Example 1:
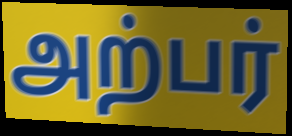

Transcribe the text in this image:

அற்பர்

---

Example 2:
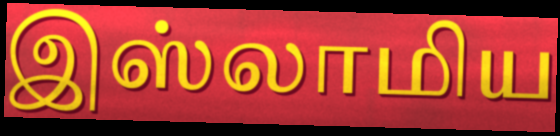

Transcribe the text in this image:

இஸ்லாமிய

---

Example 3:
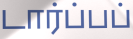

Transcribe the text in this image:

டார்ப்பப்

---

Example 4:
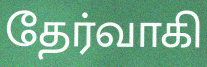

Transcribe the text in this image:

தேர்வாகி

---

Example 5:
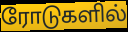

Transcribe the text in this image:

ரோடுகளில்